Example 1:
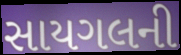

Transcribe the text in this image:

સાયગલની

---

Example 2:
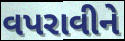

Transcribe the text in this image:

વપરાવીને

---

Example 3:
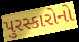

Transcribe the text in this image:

પુરસ્કારોનો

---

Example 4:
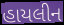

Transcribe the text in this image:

હાયલીન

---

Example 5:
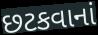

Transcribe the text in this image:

છટકવાનાં